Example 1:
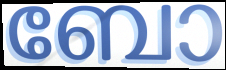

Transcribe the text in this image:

ബോ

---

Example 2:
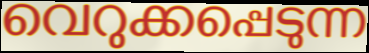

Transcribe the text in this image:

വെറുക്കപ്പെടുന്ന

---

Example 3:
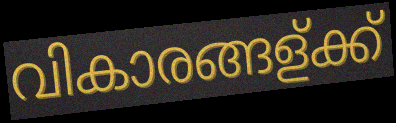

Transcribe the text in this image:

വികാരങ്ങള്ക്ക്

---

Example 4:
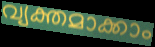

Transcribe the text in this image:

വ്യക്തമാക്കാം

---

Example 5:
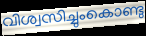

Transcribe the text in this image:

വിശ്വസിച്ചുംകൊണ്ടു